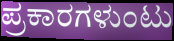
ಪ್ರಕಾರಗಳುಂಟು